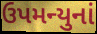
ઉપમન્યુનાં